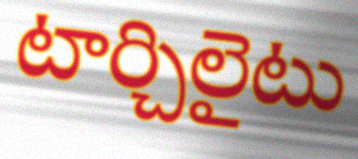
టార్చిలైటు